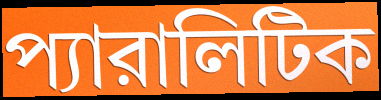
প্যারালিটিক